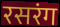
रसरंग